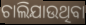
ଚାଲିଯାଉଥିବା